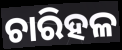
ଚାରିହଳ